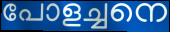
പോളച്ചനെ